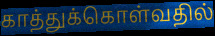
காத்துக்கொள்வதில்